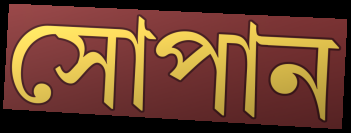
সোপান